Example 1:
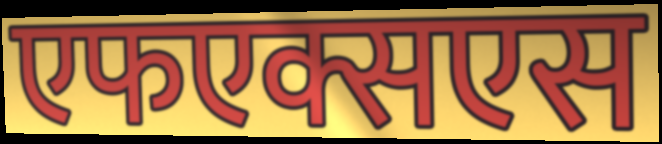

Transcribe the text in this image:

एफएक्सएस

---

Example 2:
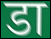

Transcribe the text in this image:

डा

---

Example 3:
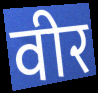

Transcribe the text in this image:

वीर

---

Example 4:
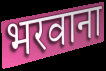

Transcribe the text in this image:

भरवाना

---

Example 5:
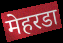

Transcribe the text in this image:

मेहरडा